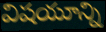
విషయూన్ని